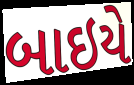
બાઇયે